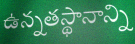
ఉన్నతస్థానాన్ని